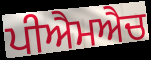
ਪੀਐਮਐਚ